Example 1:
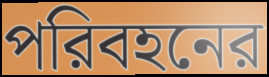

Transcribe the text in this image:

পরিবহনের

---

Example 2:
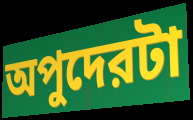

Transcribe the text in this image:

অপুদেরটা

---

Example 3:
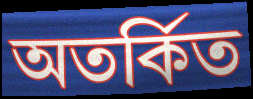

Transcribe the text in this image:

অতর্কিত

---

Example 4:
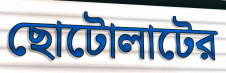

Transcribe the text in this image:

ছোটোলাটের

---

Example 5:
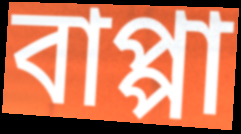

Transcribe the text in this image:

বাপ্পা